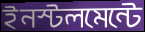
ইনস্টলমেন্টে